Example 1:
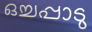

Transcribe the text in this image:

ഒച്ചപ്പാടു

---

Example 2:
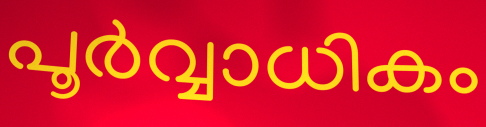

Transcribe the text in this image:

പൂർവ്വാധികം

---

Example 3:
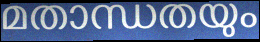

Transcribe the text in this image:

മതാന്ധതയും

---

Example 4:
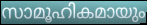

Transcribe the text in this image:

സാമൂഹികമായും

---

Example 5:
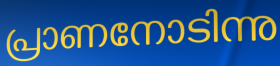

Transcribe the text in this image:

പ്രാണനോടിന്നു